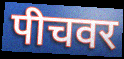
पीचवर